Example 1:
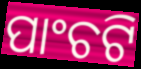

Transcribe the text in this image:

ପାଂଚଟି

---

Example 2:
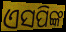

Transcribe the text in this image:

ଏସପିଙ୍କ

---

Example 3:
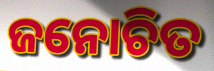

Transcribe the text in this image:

ଜନୋଚିତ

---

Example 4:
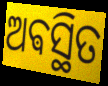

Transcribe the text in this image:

ଅଵସ୍ଥିତ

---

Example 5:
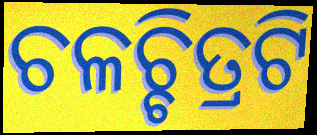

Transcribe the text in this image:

ଚଳଚ୍ଚିତ୍ରଟି